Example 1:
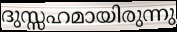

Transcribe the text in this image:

ദുസ്സഹമായിരുന്നു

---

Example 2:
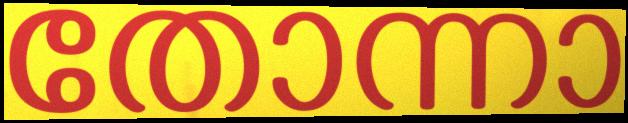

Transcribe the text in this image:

തോന്നാ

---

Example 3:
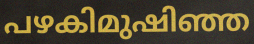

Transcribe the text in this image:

പഴകിമുഷിഞ്ഞ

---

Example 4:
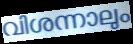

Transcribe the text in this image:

വിശന്നാലും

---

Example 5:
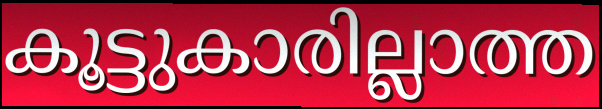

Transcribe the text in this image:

കൂട്ടുകാരില്ലാത്ത